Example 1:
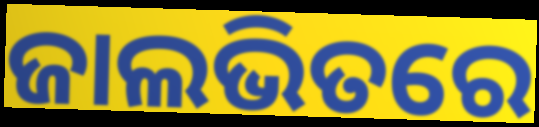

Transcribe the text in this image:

ଜାଲଭିତରେ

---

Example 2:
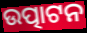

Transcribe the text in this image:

ଉତ୍ପାଟନ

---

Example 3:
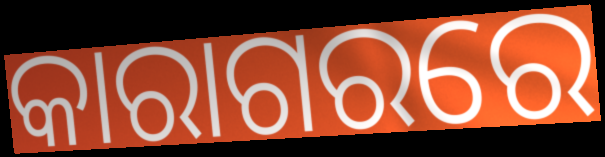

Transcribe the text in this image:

କାରାଗରରେ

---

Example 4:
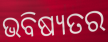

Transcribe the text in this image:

ଭବିଷ୍ୟତର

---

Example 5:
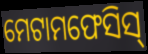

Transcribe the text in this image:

ମେଟାମଫେସିସ୍